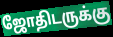
ஜோதிடருக்கு